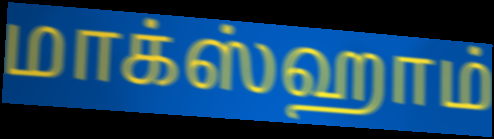
மாக்ஸ்ஹாம்